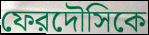
ফেরদৌসিকে